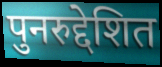
पुनरुद्देशित